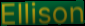
Ellison